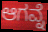
ಆಗವ್ನೆ